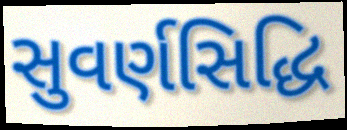
સુવર્ણસિદ્ધિ